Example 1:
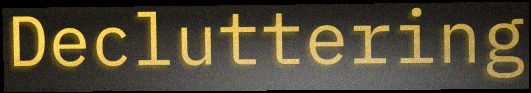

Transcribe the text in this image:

Decluttering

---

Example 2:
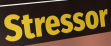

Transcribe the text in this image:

Stressor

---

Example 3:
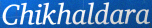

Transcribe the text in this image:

Chikhaldara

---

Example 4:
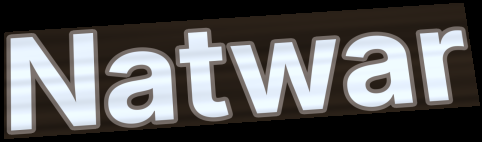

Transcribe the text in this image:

Natwar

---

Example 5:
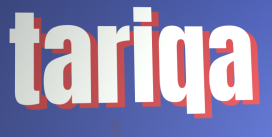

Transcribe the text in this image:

tariqa